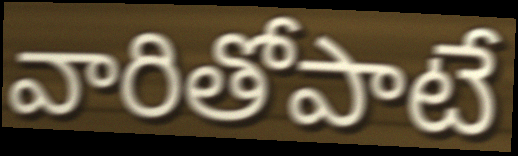
వారితోపాటే